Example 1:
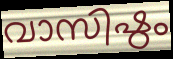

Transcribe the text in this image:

വാസിഷ്ഠം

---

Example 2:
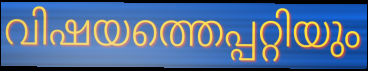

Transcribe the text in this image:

വിഷയത്തെപ്പറ്റിയും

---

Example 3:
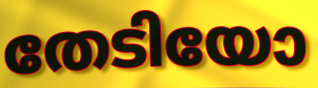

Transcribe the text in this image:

തേടിയോ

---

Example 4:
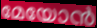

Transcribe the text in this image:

മേയോൻ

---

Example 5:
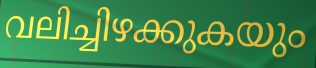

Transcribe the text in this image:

വലിച്ചിഴക്കുകയും